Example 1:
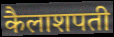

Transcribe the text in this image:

कैलाशपती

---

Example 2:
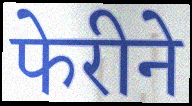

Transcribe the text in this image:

फेरीने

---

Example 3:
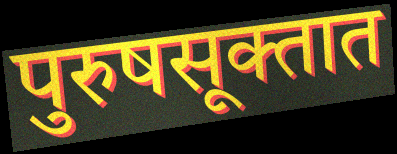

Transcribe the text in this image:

पुरुषसूक्तात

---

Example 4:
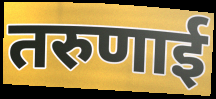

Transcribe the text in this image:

तरुणाई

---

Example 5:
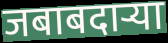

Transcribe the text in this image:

जबाबदाऱ्या